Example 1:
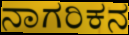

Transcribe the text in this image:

ನಾಗರಿಕನ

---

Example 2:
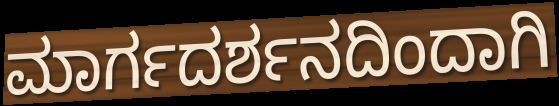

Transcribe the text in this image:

ಮಾರ್ಗದರ್ಶನದಿಂದಾಗಿ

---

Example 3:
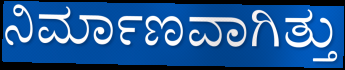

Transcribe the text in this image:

ನಿರ್ಮಾಣವಾಗಿತ್ತು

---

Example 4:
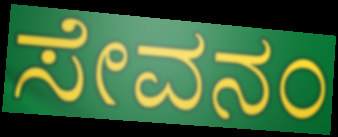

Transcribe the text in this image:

ಸೇವನಂ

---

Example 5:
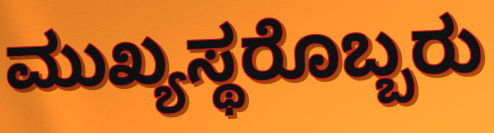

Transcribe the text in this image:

ಮುಖ್ಯಸ್ಥರೊಬ್ಬರು